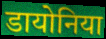
डायोनिया